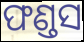
ଫଣ୍ଡସ